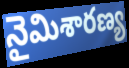
నైమిశారణ్య